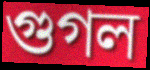
গুগল